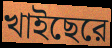
খাইছেরে